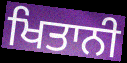
ਖਿਤਾਨੀ